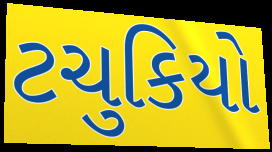
ટચુકિયો